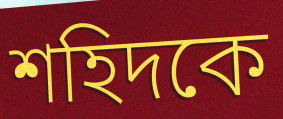
শহিদকে